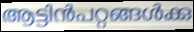
ആട്ടിൻപറ്റങ്ങൾക്കു